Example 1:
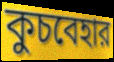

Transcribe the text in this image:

কুচবেহার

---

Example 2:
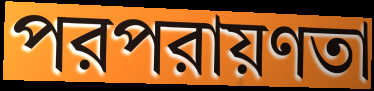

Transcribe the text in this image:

পরপরায়ণতা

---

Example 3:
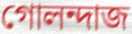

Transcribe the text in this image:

গোলন্দাজ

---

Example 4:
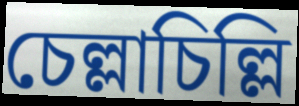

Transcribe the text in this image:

চেল্লাচিল্লি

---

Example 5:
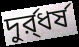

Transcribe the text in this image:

দুর্র্ধর্ষ